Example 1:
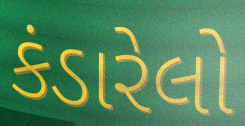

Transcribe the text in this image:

કંડારેલો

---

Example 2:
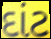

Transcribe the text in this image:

દાંટ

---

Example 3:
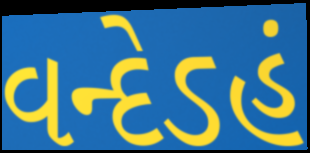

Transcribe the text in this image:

વન્દેઽહં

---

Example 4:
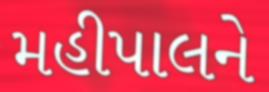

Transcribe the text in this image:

મહીપાલને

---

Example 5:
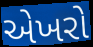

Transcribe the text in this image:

એખરો